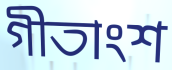
গীতাংশ